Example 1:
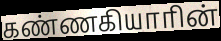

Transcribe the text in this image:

கண்ணகியாரின்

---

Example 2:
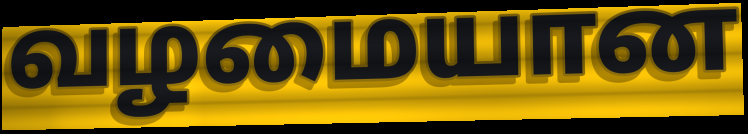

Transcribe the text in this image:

வழமையான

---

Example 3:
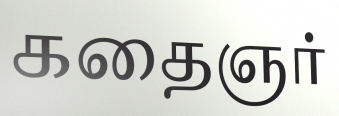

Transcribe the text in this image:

கதைஞர்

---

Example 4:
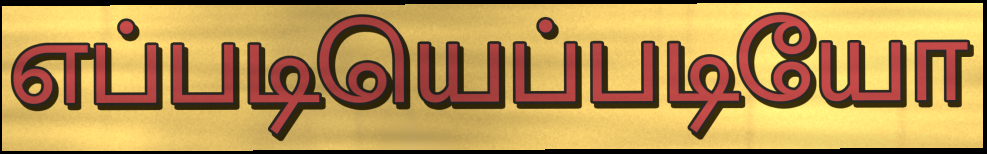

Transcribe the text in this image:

எப்படியெப்படியோ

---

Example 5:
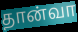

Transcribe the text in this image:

தான்வா